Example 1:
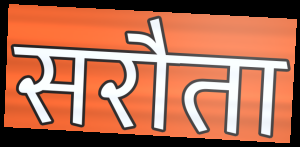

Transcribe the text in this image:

सरौता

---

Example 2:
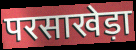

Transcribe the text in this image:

परसाखेड़ा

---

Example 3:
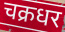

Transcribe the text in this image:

चक्रधर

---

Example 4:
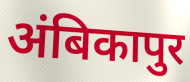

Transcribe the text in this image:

अंबिकापुर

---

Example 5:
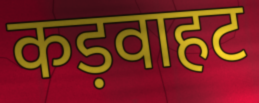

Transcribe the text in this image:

कड़वाहट